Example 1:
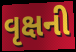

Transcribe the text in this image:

વૃક્ષની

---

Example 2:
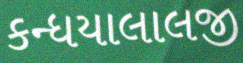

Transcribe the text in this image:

કન્ધયાલાલજી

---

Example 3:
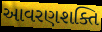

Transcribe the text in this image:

આવરણશક્તિ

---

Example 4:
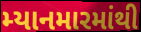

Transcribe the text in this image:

મ્યાનમારમાંથી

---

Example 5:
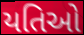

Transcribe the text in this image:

યતિઓ